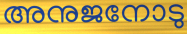
അനുജനോടു